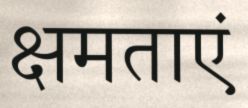
क्षमताएं